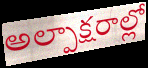
అల్పాక్షరాల్లో